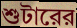
শুটারের